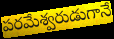
పరమేశ్వరుడుగానే